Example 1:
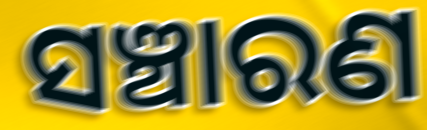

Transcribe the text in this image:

ସଞ୍ଚାରଣ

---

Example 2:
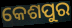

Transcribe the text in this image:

କେଶପୁର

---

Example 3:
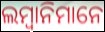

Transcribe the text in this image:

ଲମ୍ବାନିମାନେ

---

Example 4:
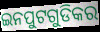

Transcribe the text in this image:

ଇନପୁଟଗୁଡିକର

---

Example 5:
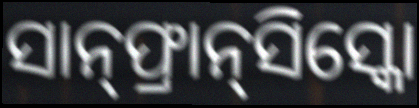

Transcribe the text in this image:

ସାନ୍‌ଫ୍ରାନ୍‌ସିସ୍କୋ